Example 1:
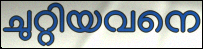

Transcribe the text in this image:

ചുറ്റിയവനെ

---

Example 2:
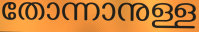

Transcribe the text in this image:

തോന്നാനുള്ള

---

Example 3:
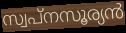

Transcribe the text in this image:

സ്വപ്നസൂര്യൻ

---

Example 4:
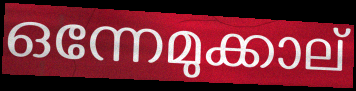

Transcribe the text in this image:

ഒന്നേമുക്കാല്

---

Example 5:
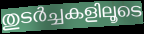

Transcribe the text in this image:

തുടർച്ചകളിലൂടെ